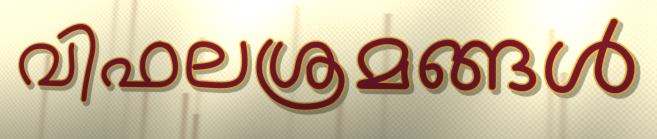
വിഫലശ്രമങ്ങൾ